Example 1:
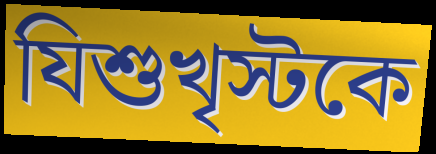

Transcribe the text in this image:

যিশুখৃস্টকে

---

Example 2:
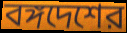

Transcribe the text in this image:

বঙ্গদেশের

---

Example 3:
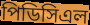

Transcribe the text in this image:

পিডিসিএল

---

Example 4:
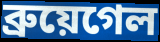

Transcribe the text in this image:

ব্রুয়েগেল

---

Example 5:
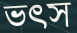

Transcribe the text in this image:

ভৎস